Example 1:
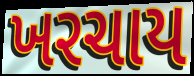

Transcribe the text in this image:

ખરચાય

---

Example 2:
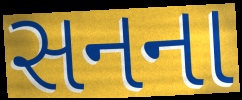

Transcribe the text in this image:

સનના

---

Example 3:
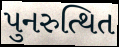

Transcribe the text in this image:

પુનરુત્થિત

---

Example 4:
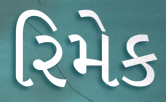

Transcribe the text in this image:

રિમેક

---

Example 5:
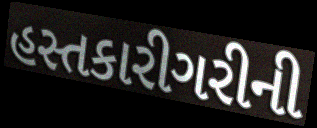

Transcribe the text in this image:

હસ્તકારીગરીની